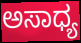
ಅಸಾಧ್ಯ